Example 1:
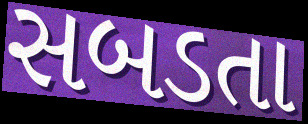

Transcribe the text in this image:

સબડતા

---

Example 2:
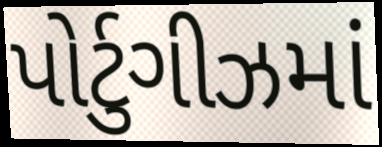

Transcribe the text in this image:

પોર્ટુગીઝમાં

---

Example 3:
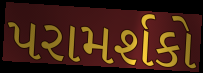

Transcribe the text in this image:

પરામર્શકો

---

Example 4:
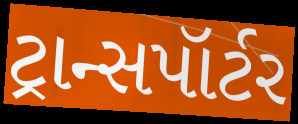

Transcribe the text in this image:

ટ્રાન્સપૉર્ટર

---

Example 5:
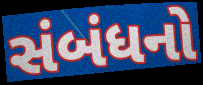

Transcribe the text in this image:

સંબંધનો